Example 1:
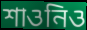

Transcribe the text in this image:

শাওনিও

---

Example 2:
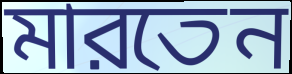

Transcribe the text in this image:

মারতেন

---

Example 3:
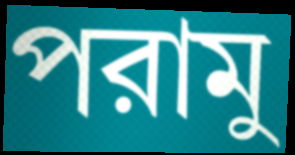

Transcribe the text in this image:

পরামু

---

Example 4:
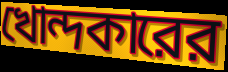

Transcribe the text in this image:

খোন্দকারের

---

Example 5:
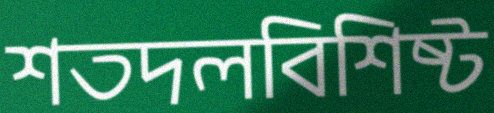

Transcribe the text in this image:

শতদলবিশিষ্ট